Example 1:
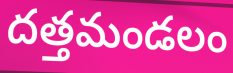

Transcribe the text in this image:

దత్తమండలం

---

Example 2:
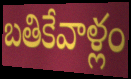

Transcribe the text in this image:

బతికేవాళ్లం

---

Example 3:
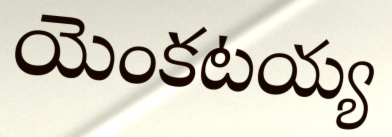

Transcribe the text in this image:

యెంకటయ్య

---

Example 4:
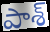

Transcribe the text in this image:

పాశ్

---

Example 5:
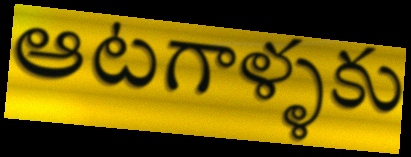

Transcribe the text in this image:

ఆటగాళ్ళకు